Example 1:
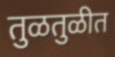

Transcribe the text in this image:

तुळतुळीत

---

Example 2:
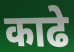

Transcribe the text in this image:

काढे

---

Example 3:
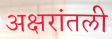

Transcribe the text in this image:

अक्षरांतली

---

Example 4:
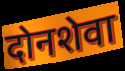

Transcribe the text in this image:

दोनशेवा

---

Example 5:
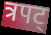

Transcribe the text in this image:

त्रपट्